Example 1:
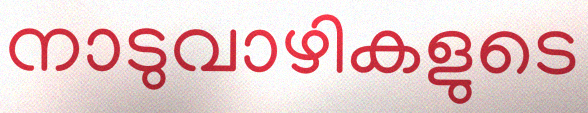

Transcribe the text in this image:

നാടുവാഴികളുടെ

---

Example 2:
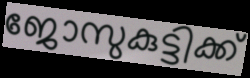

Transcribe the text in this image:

ജോസുകുട്ടിക്ക്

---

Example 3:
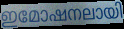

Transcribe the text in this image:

ഇമോഷനലായി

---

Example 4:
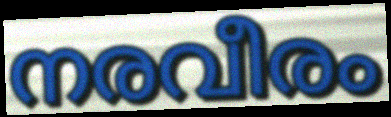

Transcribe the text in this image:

നരവീരം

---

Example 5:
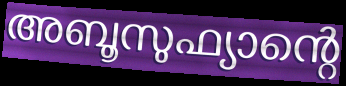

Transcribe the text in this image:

അബൂസുഫ്യാന്റെ